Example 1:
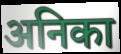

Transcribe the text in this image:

अनिका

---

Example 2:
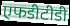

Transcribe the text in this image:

एफडीटीडी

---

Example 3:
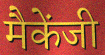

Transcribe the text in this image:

मैकेंजी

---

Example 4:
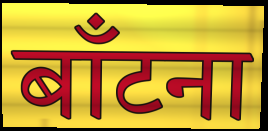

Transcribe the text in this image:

बाँटना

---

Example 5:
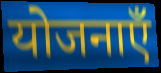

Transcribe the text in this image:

योजनाएँ